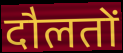
दौलतों